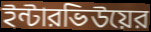
ইন্টারভিউয়ের